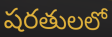
షరతులలో